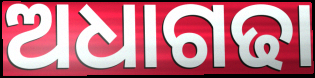
ଅଧାଗଢା